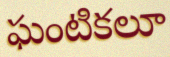
ఘంటికలూ